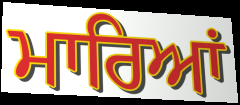
ਮਾਰਿਆਂ